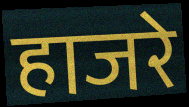
हाजरे